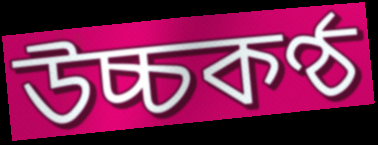
উচ্চকণ্ঠ